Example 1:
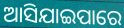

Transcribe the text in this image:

ଆସିଯାଇପାରେ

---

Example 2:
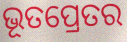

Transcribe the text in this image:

ଭୂତପ୍ରେତର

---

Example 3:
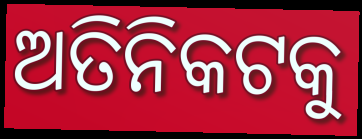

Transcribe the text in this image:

ଅତିନିକଟକୁ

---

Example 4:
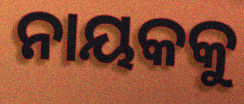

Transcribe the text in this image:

ନାୟକକୁ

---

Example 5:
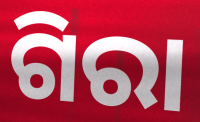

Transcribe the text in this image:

ଗିରା